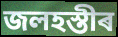
জলহস্তীৰ